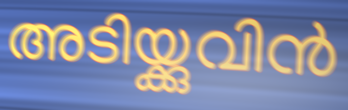
അടിയ്ക്കുവിൻ